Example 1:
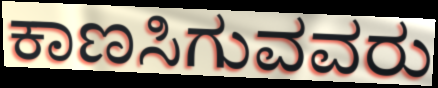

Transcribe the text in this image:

ಕಾಣಸಿಗುವವರು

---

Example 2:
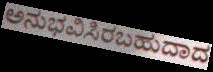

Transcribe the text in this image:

ಅನುಭವಿಸಿರಬಹುದಾದ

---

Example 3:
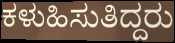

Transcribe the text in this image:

ಕಳುಹಿಸುತಿದ್ದರು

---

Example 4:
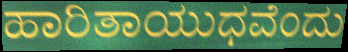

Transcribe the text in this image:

ಹಾರಿತಾಯುಧವೆಂದು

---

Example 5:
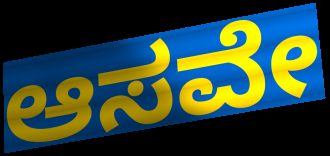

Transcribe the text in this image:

ಆಸವೇ